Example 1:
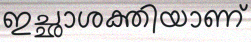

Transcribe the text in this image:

ഇച്ഛാശക്തിയാണ്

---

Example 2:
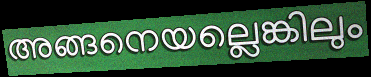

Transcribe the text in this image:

അങ്ങനെയല്ലെങ്കിലും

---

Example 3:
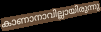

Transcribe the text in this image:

കാണാനാവില്ലായിരുന്നു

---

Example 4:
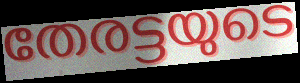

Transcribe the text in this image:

തേരട്ടയുടെ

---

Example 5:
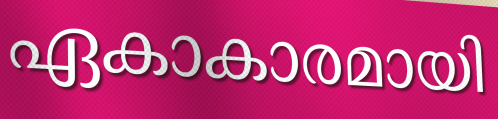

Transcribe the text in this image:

ഏകാകാരമായി